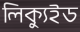
লিক্যুইড